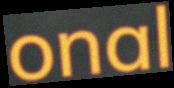
onal